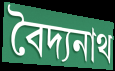
বৈদ্যনাথ